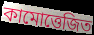
কামোত্তেজিত